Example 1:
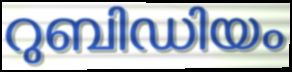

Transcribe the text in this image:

റുബിഡിയം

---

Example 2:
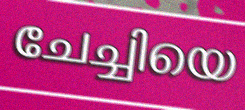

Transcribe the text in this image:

ചേച്ചിയെ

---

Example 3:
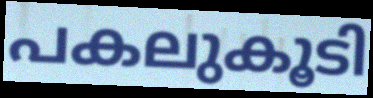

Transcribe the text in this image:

പകലുകൂടി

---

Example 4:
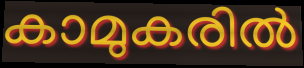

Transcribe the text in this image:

കാമുകരിൽ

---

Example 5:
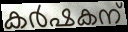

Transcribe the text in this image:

കർഷകന്